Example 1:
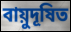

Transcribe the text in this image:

বায়ুদূষিত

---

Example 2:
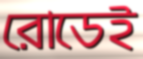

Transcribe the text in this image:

রোডেই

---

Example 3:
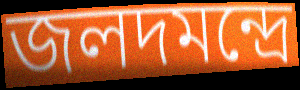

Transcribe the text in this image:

জলদমন্দ্রে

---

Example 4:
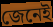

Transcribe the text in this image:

জেনেই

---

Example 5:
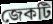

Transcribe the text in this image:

জেকটি